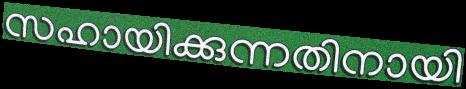
സഹായിക്കുന്നതിനായി